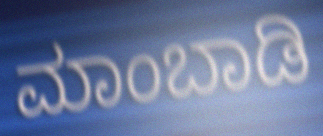
ಮಾಂಬಾಡಿ